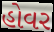
હોવર